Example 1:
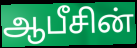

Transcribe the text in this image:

ஆபீசின்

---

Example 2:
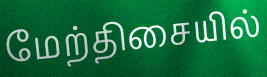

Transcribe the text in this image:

மேற்திசையில்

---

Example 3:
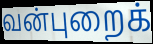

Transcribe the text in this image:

வன்புறைக்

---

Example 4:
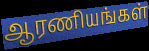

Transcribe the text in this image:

ஆரணியங்கள்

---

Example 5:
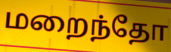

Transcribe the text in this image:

மறைந்தோ